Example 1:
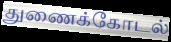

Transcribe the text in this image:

துணைக்கோடல்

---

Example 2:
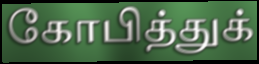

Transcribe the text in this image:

கோபித்துக்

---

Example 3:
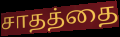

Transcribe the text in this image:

சாதத்தை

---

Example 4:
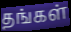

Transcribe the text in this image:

தங்கள்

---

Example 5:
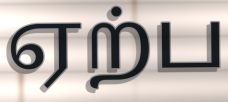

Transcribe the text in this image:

ஏற்ப